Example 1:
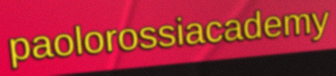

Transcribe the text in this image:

paolorossiacademy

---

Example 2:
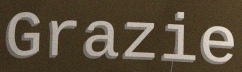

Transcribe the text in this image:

Grazie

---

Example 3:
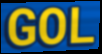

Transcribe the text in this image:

GOL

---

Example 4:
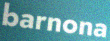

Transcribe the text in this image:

barnona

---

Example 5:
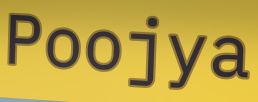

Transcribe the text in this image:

Poojya